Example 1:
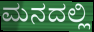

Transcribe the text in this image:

ಮನದಲ್ಲಿ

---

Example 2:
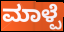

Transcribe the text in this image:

ಮಾಳ್ಪೆ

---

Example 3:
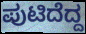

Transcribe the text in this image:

ಪುಟಿದೆದ್ದ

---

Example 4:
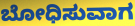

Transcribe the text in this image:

ಬೋಧಿಸುವಾಗ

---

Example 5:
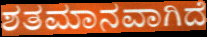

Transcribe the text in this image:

ಶತಮಾನವಾಗಿದೆ